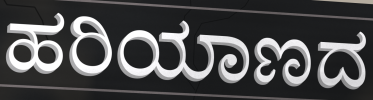
ಹರಿಯಾಣದ